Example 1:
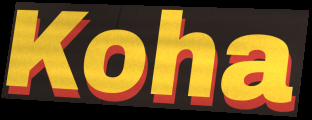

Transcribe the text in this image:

Koha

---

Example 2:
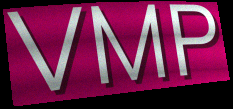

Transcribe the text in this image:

VMP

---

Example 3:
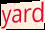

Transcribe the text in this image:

yard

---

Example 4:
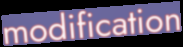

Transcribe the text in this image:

modification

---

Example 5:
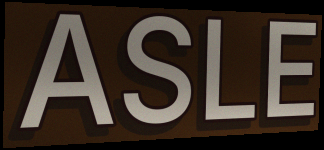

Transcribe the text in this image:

ASLE